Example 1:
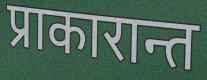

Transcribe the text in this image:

प्राकारान्त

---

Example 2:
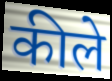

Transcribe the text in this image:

कीले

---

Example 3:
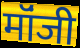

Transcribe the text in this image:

मॉंजी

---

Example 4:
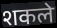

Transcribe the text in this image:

शकले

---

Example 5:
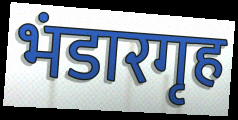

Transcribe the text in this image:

भंडारगृह